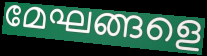
മേഘങ്ങളെ